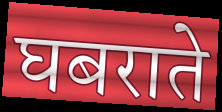
घबराते